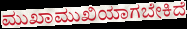
ಮುಖಾಮುಖಿಯಾಗಬೇಕಿದೆ